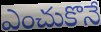
ఎంచుకొనే